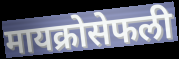
मायक्रोसेफली